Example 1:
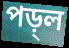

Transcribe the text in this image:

পড়্ল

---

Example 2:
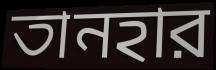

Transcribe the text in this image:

তানহার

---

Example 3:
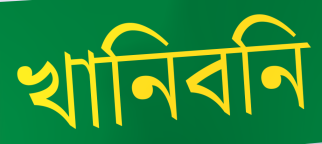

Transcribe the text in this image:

খানিবনি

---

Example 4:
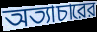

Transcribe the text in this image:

অত্যাচারের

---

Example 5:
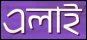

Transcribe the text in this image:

এলাই